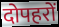
दोपहरों